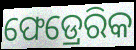
ଫେଡ୍ରେରିକ